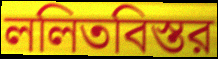
ললিতবিস্তর